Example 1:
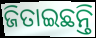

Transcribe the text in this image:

ଜିତାଇଛନ୍ତି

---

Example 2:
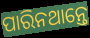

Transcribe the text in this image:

ପାରିନଥାନ୍ତେ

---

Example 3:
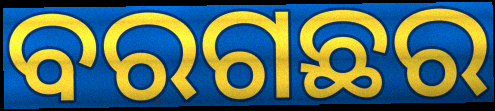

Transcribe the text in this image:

ବରଗଛର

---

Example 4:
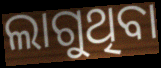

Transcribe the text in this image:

ଲାଗୁଥିବା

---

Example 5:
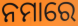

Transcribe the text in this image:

ନମାରେ